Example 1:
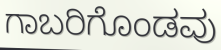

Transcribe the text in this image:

ಗಾಬರಿಗೊಂಡವು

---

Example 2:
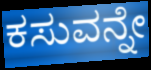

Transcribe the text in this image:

ಕಸುವನ್ನೇ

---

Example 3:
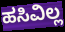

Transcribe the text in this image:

ಹಸಿವಿಲ್ಲ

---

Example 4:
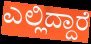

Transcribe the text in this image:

ಎಲ್ಲಿದ್ದಾರೆ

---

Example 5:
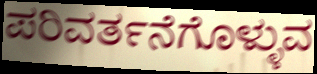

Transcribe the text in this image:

ಪರಿವರ್ತನೆಗೊಳ್ಳುವ